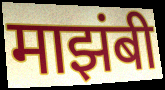
माझंबी